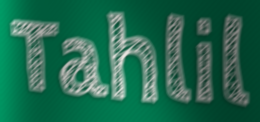
Tahlil